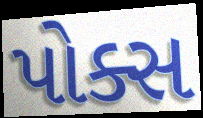
પોક્સ